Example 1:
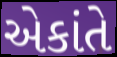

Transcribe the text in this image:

એકાંતે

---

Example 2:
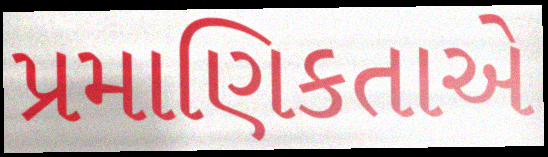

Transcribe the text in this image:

પ્રમાણિકતાએ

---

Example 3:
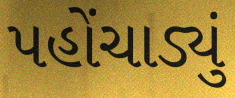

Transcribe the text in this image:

પહોંચાડ્યું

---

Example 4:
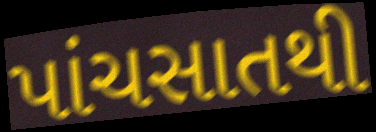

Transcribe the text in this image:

પાંચસાતથી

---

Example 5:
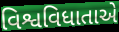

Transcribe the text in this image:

વિશ્વવિધાતાએ